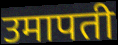
उमापती